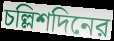
চল্লিশদিনের